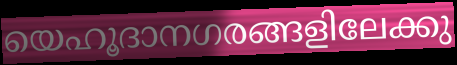
യെഹൂദാനഗരങ്ങളിലേക്കു